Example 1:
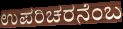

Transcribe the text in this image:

ಉಪರಿಚರನೆಂಬ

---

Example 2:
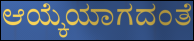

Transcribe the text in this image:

ಆಯ್ಕೆಯಾಗದಂತೆ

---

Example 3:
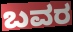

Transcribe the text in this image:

ಬವರ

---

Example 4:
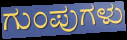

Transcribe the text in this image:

ಗುಂಪುಗಳು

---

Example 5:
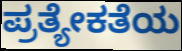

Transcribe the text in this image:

ಪ್ರತ್ಯೇಕತೆಯ